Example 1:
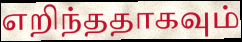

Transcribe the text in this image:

எறிந்ததாகவும்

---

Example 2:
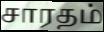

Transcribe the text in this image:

சாரதம்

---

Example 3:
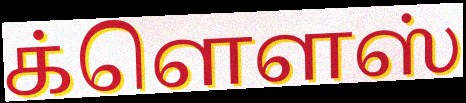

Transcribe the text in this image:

க்ளௌஸ்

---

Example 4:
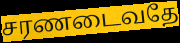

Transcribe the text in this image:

சரணடைவதே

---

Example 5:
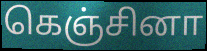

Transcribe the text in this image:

கெஞ்சினா